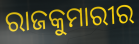
ରାଜକୁମାରୀର